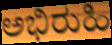
ಅಭಿರುಹಿ